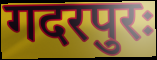
गदरपुरः